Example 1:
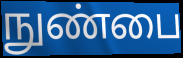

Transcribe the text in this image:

நுண்பை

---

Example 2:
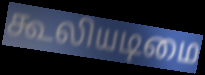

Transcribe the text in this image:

கூலியடிமை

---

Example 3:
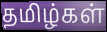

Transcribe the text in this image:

தமிழ்கள்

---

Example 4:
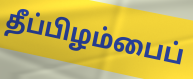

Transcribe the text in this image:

தீப்பிழம்பைப்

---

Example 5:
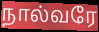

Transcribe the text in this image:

நால்வரே